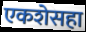
एकशेसहा